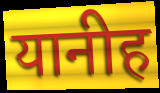
यानीह